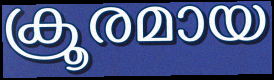
ക്രൂരമായ